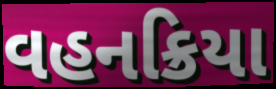
વહનક્રિયા